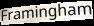
Framingham